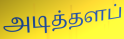
அடித்தளப்